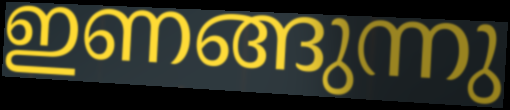
ഇണങ്ങുന്നു